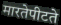
मारतेपीटते